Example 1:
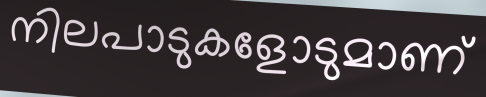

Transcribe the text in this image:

നിലപാടുകളോടുമാണ്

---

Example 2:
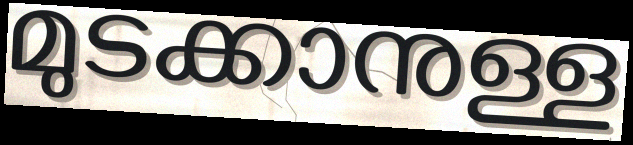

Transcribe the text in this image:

മുടക്കാനുള്ള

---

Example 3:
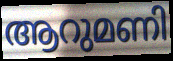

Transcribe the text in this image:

ആറുമണി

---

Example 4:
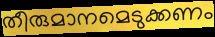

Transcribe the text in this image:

തീരുമാനമെടുക്കണം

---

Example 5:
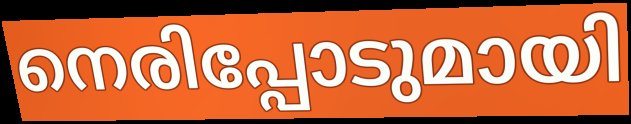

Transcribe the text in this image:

നെരിപ്പോടുമായി